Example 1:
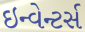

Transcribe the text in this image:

ઇન્વેન્ટર્સ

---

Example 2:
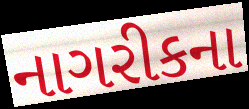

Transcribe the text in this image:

નાગરીકના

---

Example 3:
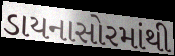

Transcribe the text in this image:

ડાયનાસોરમાંથી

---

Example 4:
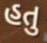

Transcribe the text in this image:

હતુ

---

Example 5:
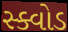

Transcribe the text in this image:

સ્ક્વોડ